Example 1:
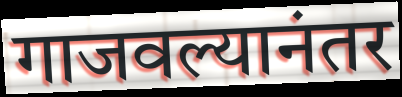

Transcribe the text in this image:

गाजवल्यानंतर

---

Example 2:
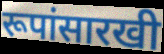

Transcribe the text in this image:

रूपांसारखी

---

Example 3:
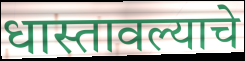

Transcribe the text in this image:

धास्तावल्याचे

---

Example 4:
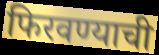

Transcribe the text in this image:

फिरवण्याची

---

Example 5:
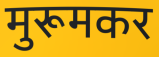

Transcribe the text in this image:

मुरूमकर